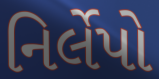
નિર્લેપો